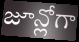
జూన్లోగా